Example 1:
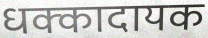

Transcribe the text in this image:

धक्‍कादायक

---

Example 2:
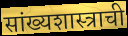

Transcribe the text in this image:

सांख्यशास्त्राची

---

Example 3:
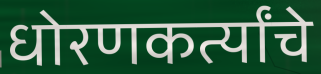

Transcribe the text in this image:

धोरणकर्त्यांचे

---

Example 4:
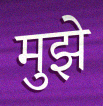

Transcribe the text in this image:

मुझे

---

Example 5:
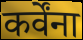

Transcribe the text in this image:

कर्वेंना